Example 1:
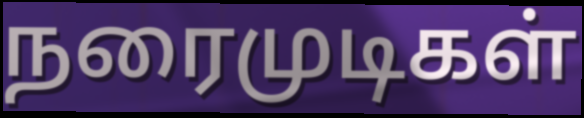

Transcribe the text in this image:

நரைமுடிகள்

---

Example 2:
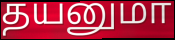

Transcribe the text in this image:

தயனுமா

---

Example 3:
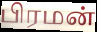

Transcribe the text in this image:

பிரமன்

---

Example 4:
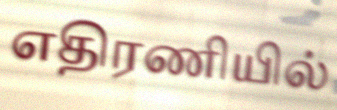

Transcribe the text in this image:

எதிரணியில்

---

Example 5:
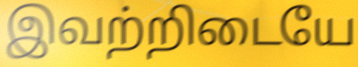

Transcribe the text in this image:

இவற்றிடையே